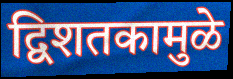
द्विशतकामुळे